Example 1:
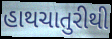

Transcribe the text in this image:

હાથચાતુરીથી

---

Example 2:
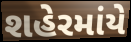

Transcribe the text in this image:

શહેરમાંયે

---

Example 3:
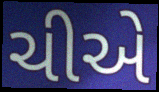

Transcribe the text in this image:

ચીએ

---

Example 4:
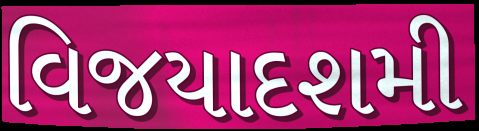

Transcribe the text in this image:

વિજયાદશમી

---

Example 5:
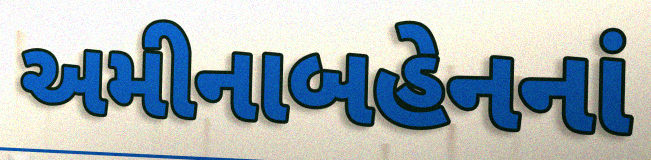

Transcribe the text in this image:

અમીનાબહેનનાં